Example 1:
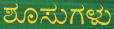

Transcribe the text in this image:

ಶೂಸುಗಳು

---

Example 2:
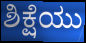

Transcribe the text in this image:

ಶಿಕ್ಷೆಯು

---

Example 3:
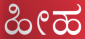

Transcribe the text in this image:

ಹೀಹ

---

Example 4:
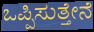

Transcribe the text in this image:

ಒಪ್ಪಿಸುತ್ತೇನೆ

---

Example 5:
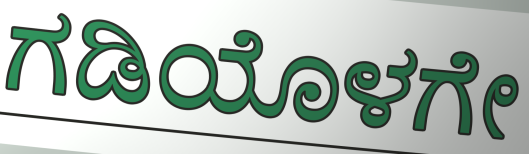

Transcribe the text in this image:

ಗಡಿಯೊಳಗೇ